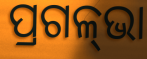
ପ୍ରଗଳ୍‌ଭା